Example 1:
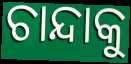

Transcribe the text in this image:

ଚାନ୍ଦାକୁ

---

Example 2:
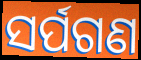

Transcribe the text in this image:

ସର୍ପଗଣ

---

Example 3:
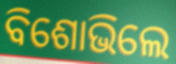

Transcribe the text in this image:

ବିଶୋଭିଲେ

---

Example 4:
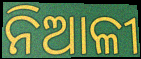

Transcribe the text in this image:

ନିଆଳୀ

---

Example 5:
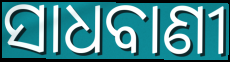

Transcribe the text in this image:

ସାଧବାଣୀ